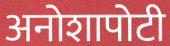
अनोशापोटी